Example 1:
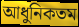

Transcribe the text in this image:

আধুনিকতম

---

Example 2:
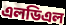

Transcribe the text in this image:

এলডিএল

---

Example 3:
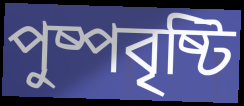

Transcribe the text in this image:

পুষ্পবৃষ্টি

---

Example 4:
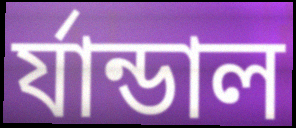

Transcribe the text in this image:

র্যান্ডাল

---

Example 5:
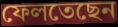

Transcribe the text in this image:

ফেলতেছেন